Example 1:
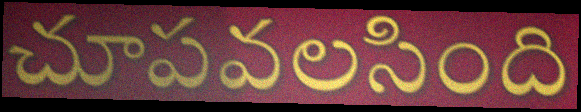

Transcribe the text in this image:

చూపవలసింది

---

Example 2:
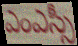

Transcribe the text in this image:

ఎంఎస్సీ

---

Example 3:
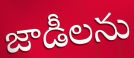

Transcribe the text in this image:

జాడీలను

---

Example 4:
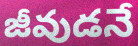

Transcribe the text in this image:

జీవుడనే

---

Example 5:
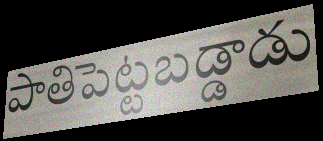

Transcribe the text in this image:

పాతిపెట్టబడ్డాడు